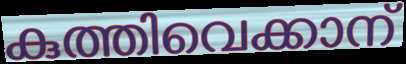
കുത്തിവെക്കാന്